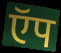
ऍप